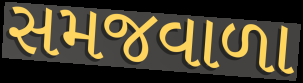
સમજવાળા